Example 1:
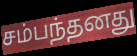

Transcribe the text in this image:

சம்பந்தனது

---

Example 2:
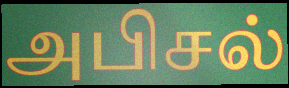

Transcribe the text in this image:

அபிசல்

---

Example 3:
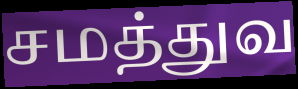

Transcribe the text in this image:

சமத்துவ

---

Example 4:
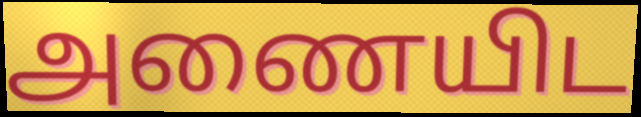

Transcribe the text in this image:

அணையிட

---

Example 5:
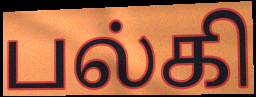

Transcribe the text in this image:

பல்கி